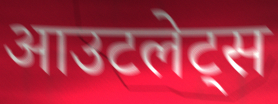
आउटलेट्स